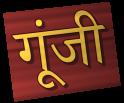
गूंजी